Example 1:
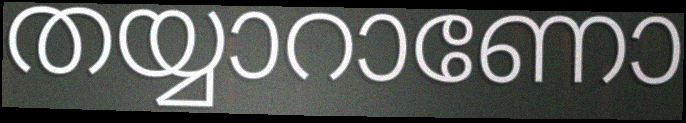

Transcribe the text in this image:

തയ്യാറാണോ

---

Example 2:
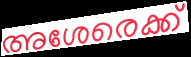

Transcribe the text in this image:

അശേരെക്ക്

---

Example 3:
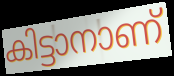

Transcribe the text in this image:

കിട്ടാനാണ്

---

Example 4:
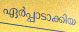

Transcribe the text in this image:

ഏർപ്പാടാക്കിയ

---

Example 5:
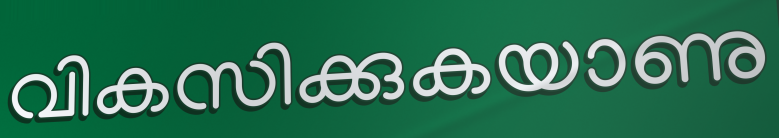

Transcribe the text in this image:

വികസിക്കുകയാണു